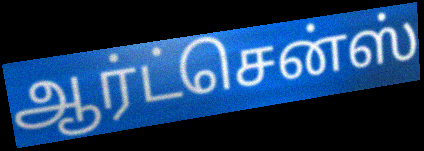
ஆர்ட்சென்ஸ்